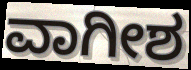
ವಾಗೀಶ